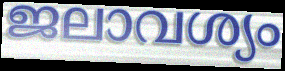
ജലാവശ്യം